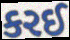
કરઈ